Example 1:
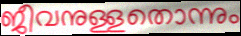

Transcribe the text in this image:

ജീവനുള്ളതൊന്നും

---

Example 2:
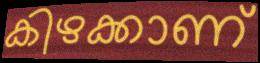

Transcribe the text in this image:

കിഴക്കാണ്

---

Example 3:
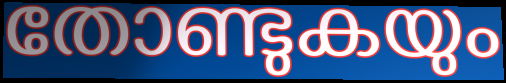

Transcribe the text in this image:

തോണ്ടുകയും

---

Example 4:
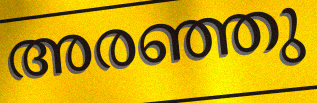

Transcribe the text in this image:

അരഞ്ഞു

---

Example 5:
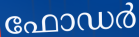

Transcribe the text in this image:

ഫോഡർ